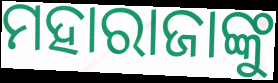
ମହାରାଜାଙ୍କୁ